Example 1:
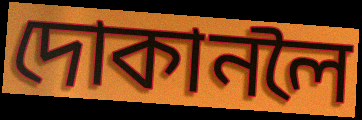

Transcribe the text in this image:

দোকানলৈ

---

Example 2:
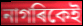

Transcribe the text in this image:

নাগৰিকেই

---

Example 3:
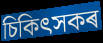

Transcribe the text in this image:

চিকিৎসকৰ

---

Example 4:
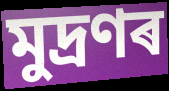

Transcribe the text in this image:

মুদ্ৰণৰ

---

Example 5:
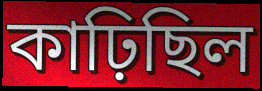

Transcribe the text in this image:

কাঢ়িছিল